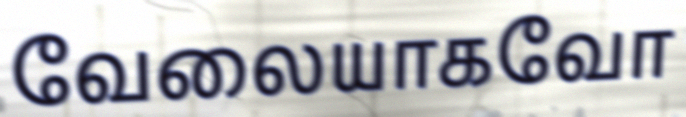
வேலையாகவோ